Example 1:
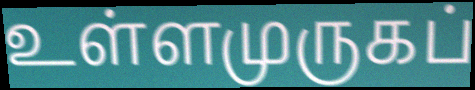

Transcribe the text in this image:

உள்ளமுருகப்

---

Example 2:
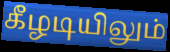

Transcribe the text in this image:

கீழடியிலும்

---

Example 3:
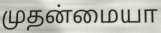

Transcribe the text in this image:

முதன்மையா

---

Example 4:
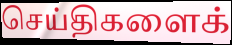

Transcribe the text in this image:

செய்திகளைக்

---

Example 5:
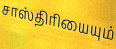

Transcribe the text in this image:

சாஸ்திரியையும்